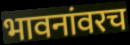
भावनांवरच